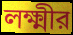
লক্ষ্মীর